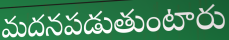
మదనపడుతుంటారు